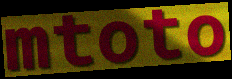
mtoto